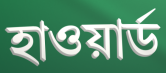
হাওয়ার্ড